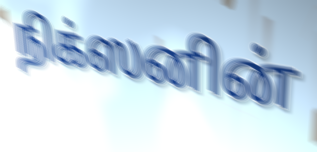
நிக்ஸனின்